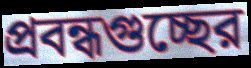
প্রবন্ধগুচ্ছের